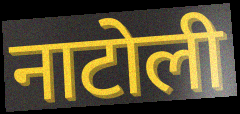
नाटोली